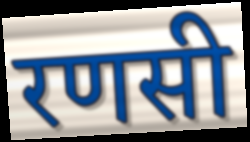
रणसी